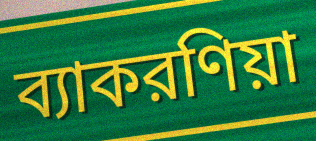
ব্যাকরণিয়া